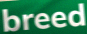
breed